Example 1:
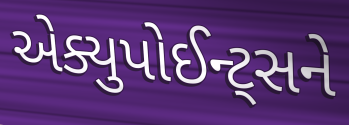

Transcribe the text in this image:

એક્યુપોઈન્ટ્સને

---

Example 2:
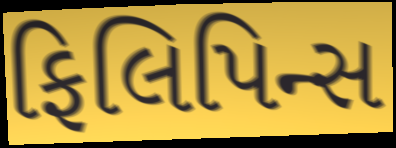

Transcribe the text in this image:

ફિલિપિન્સ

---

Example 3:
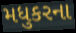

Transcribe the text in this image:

મધુકરના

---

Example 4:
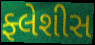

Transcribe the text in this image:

ફ્લેશીસ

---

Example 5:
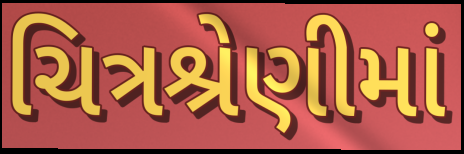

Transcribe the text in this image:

ચિત્રશ્રેણીમાં